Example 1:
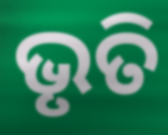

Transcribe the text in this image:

ଭୃତି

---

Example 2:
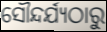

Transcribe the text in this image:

ସୌନ୍ଦର୍ଯ୍ୟଠାରୁ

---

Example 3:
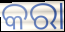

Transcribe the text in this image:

କରା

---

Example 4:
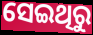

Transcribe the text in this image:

ସେଇଥିରୁ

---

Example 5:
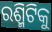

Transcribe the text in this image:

ରଶ୍ମିଟିକୁ